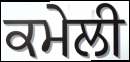
ਕਮੇਲੀ